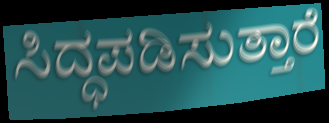
ಸಿದ್ಧಪಡಿಸುತ್ತಾರೆ